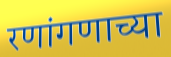
रणांगणाच्या